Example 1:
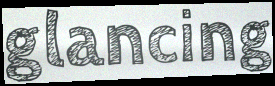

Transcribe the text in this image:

glancing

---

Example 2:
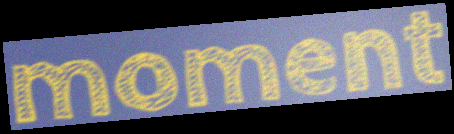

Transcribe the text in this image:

moment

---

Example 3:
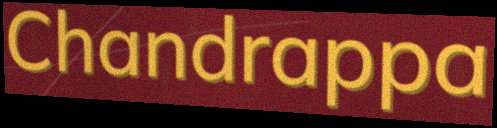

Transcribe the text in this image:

Chandrappa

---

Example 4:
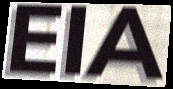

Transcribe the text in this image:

EIA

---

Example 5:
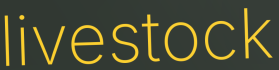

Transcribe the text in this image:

livestock